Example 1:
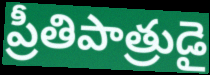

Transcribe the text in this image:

ప్రీతిపాత్రుడై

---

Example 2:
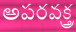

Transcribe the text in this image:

అపరవక్త్ర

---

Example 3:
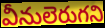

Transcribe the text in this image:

వీనులెరుగని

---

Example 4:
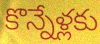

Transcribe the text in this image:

కొన్నేళ్లకు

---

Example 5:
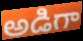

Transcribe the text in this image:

అడిగా